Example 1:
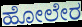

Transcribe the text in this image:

ಹೋಲೇರ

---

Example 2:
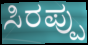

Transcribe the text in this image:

ಸಿರಪ್ಪು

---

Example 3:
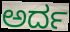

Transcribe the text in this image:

ಅರ್ದ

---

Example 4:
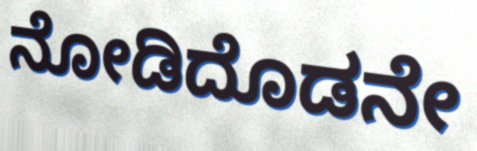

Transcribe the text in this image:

ನೋಡಿದೊಡನೇ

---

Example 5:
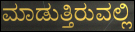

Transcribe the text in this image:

ಮಾಡುತ್ತಿರುವಲ್ಲಿ